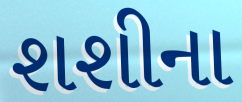
શશીના